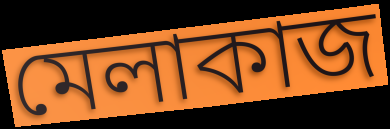
মেলাকাজ